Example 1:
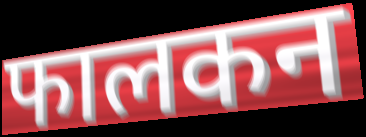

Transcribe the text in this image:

फालकन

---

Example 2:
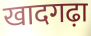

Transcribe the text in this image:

खादगढ़ा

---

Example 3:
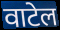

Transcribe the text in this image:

वाटेल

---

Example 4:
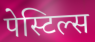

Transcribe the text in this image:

पेस्टिल्स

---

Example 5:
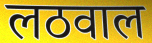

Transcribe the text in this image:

लठवाल